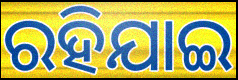
ରହିଯାଇ